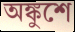
অঙ্কুশে